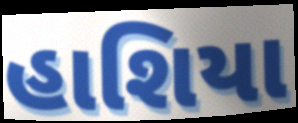
હાશિયા